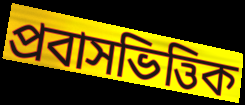
প্রবাসভিত্তিক